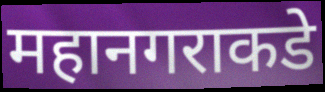
महानगराकडे